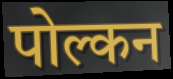
पोल्कन